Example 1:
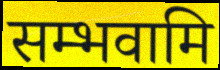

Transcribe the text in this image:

सम्भवामि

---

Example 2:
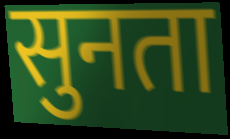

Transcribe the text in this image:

सुनता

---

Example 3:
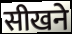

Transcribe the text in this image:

सीखने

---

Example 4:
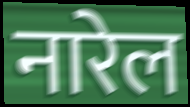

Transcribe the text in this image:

नारेल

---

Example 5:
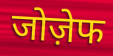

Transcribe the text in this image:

जोज़ेफ